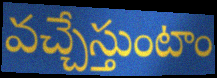
వచ్చేస్తుంటాం